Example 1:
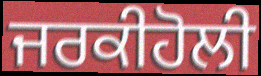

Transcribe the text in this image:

ਜਰਕੀਹੋਲੀ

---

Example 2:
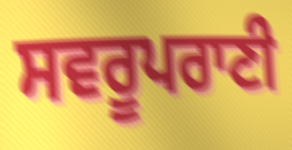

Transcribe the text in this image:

ਸਵਰੂਪਰਾਣੀ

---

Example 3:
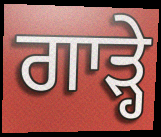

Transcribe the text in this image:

ਗਾੜ੍ਹੇ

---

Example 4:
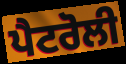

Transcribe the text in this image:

ਪੈਟਰੋਲੀ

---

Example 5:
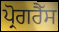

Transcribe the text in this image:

ਪ੍ਰੋਗਰੈੱਸ